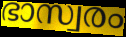
ഭാസ്വരം